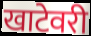
खाटेवरी